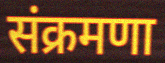
संक्रमणा